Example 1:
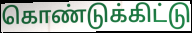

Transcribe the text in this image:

கொண்டுக்கிட்டு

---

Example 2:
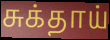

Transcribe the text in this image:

சுக்தாய்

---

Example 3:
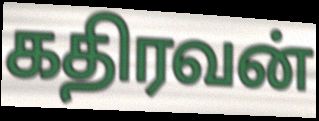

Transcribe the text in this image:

கதிரவன்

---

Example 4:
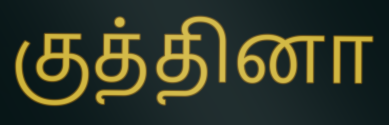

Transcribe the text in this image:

குத்தினா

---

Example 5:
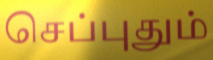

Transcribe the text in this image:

செப்புதும்